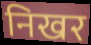
निखर